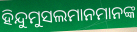
ହିନ୍ଦୁମୁସଲମାନମାନଙ୍କ